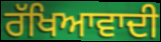
ਰੱਖਿਆਵਾਦੀ